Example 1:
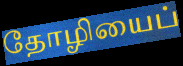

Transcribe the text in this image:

தோழியைப்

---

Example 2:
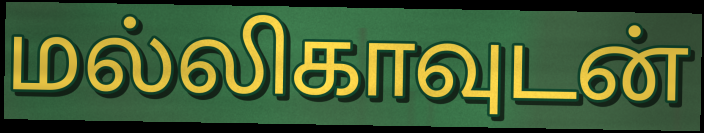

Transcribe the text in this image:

மல்லிகாவுடன்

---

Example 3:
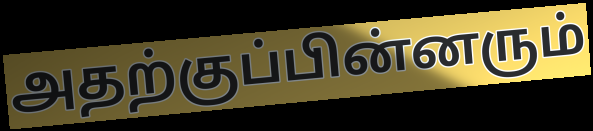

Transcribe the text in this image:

அதற்குப்பின்னரும்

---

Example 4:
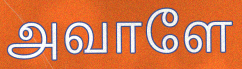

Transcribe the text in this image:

அவாளே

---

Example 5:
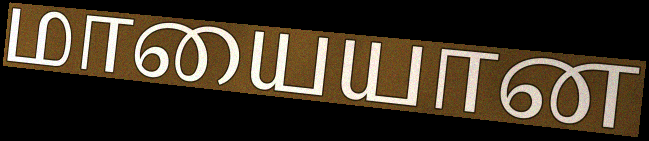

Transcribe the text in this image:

மாயையான